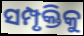
ସମ୍ପୃକ୍ତିକୁ